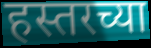
हस्तरच्या